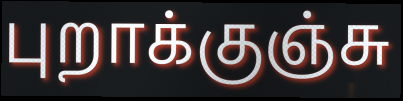
புறாக்குஞ்சு